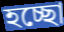
হচ্ছো